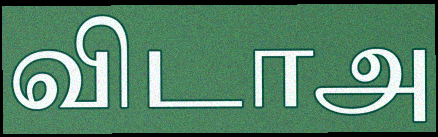
விடாஅ